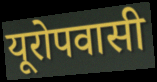
यूरोपवासी